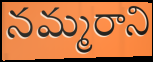
నమ్మరాని